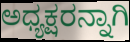
ಅಧ್ಯಕ್ಷರನ್ನಾಗಿ